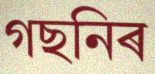
গছনিৰ